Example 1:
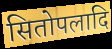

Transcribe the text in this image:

सितोपलादि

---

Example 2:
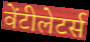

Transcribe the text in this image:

वेंटीलेटर्स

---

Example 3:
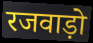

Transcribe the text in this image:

रजवाड़ो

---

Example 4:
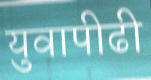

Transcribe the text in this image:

युवापीढी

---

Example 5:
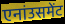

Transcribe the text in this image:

एनांउसमेंट